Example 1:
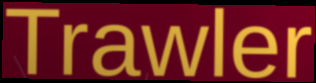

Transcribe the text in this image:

Trawler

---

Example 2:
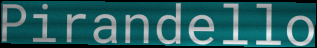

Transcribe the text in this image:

Pirandello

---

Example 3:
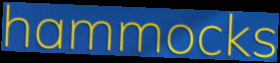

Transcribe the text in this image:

hammocks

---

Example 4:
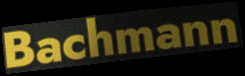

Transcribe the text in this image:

Bachmann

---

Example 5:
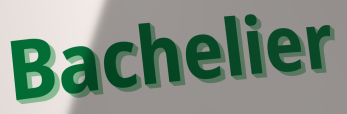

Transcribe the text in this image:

Bachelier